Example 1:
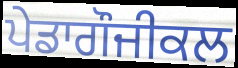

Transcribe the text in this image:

ਪੇਡਾਗੌਜੀਕਲ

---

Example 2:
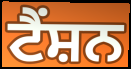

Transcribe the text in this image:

ਟੈਂਸ਼ਨ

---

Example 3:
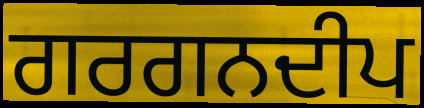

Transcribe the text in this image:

ਗਰਗਨਦੀਪ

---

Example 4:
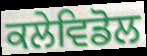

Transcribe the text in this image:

ਕਲੇਵਿਡੋਲ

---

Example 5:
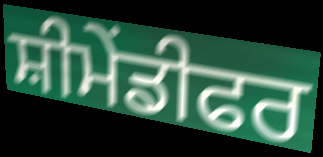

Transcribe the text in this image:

ਸ਼ੀਮੇਂਡੀਫਰ